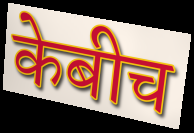
केबीच